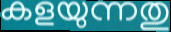
കളയുന്നതു